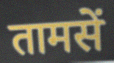
तामसें